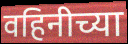
वहिनीच्या